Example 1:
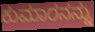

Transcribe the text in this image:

ಕುಮಾರನನ್ನು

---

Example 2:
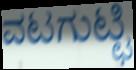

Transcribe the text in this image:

ವಟಗುಟ್ಟಿ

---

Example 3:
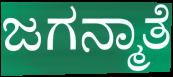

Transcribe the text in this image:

ಜಗನ್ಮಾತೆ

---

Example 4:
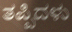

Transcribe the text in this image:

ತಪ್ಪಿದಳು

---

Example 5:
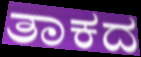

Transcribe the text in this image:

ತಾಕದ